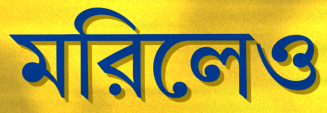
মরিলেও